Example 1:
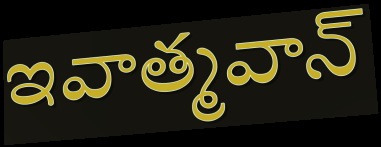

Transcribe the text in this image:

ఇవాత్మవాన్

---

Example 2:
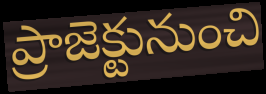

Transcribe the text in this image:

ప్రాజెక్టునుంచి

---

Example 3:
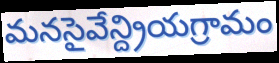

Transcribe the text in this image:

మనసైవేన్ద్రియగ్రామం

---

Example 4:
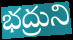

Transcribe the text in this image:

భద్రుని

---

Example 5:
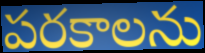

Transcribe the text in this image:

పరకాలను